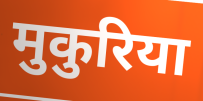
मुकुरिया